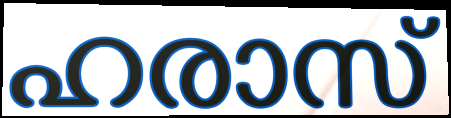
ഹരാസ്